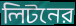
লিটনের